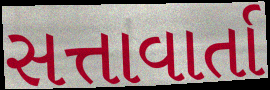
સત્તાવાર્તા